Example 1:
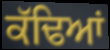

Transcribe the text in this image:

ਕੱਢਿਆਂ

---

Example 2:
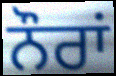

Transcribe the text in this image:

ਨੌਰਾਂ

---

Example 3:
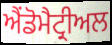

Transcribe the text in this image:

ਐਂਡੋਮੈਟ੍ਰੀਅਲ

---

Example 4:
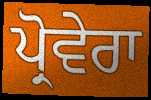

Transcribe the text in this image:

ਪ੍ਰੋਵੇਰਾ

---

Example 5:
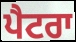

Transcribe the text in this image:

ਪੈਟਰਾ